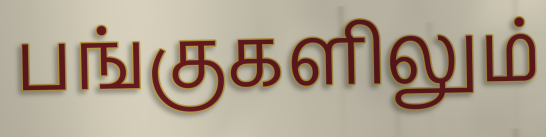
பங்குகளிலும்